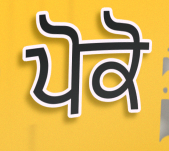
ਪੋਕੋ